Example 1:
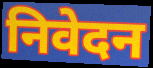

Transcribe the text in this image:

निवेदन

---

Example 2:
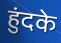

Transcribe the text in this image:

हुंदके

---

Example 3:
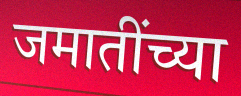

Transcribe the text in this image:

जमातींच्या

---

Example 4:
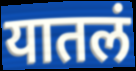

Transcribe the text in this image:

यातलं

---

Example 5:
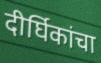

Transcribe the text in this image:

दीर्घिकांचा